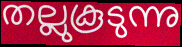
തല്ലുകൂടുന്നു